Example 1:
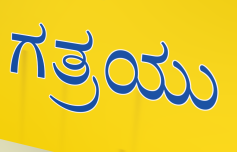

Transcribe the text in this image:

ಗತ್ರಯು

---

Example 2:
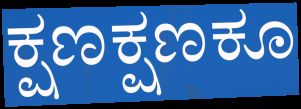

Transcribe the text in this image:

ಕ್ಷಣಕ್ಷಣಕೂ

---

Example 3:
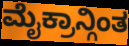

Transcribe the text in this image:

ಮೈಕ್ರಾನ್ಗಿಂತ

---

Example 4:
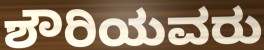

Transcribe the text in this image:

ಶೌರಿಯವರು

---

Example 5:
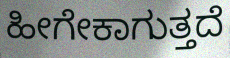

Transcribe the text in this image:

ಹೀಗೇಕಾಗುತ್ತದೆ